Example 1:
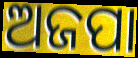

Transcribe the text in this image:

ଅଜପା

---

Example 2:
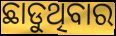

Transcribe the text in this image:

ଛାଡୁଥିବାର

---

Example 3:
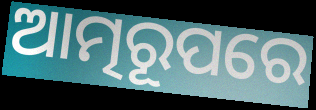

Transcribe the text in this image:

ଆତ୍ମରୂପରେ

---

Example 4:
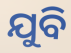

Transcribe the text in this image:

ଯୁବି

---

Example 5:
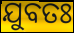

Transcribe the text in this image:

ଯୁବତଃ